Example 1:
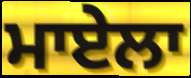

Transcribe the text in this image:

ਮਾਏਲਾ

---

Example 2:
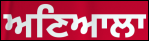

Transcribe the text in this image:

ਅਣਿਆਲਾ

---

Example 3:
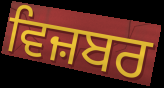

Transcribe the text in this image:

ਵਿਜ਼ਬਰ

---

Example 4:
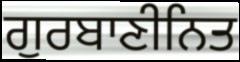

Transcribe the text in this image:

ਗੁਰਬਾਣੀਨਿਤ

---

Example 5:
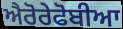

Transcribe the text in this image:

ਐਰੋਰੇਫੋਬੀਆ